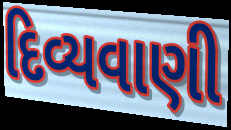
દિવ્યવાણી